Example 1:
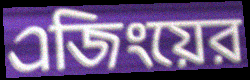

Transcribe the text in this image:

এজিংয়ের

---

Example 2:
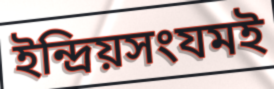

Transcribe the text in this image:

ইন্দ্রিয়সংযমই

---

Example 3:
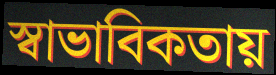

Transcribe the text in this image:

স্বাভাবিকতায়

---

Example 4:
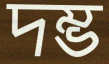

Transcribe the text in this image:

দম্ভ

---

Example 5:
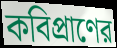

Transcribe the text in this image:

কবিপ্রাণের